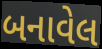
બનાવેલ